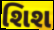
શિશ